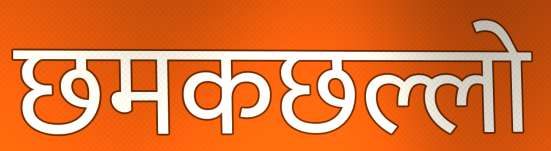
छमकछल्लो